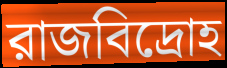
রাজবিদ্রোহ